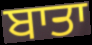
ਬਾਤਾ